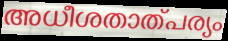
അധീശതാത്പര്യം